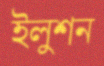
ইলুশন